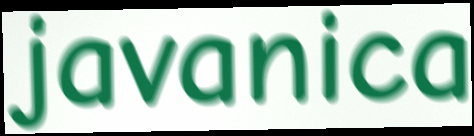
javanica